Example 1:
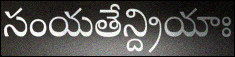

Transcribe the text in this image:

సంయతేన్ద్రియాః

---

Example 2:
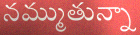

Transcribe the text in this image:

నమ్ముతున్నా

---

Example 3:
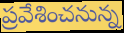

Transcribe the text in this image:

ప్రవేశించనున్న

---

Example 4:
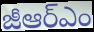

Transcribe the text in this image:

జీఆర్ఎం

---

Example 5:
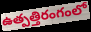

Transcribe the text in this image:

ఉత్పత్తిరంగంలో